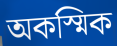
অকস্মিক